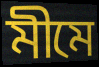
মীমে